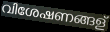
വിശേഷണങ്ങള്